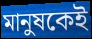
মানুষকেই